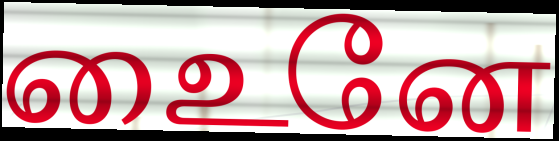
உைனே